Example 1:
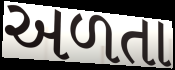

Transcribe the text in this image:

અળતા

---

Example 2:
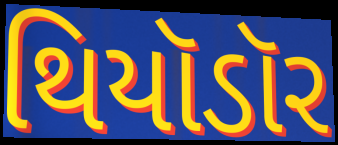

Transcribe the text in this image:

થિયૉડૉર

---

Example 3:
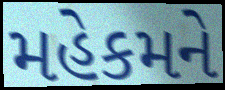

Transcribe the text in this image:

મહેકમને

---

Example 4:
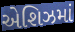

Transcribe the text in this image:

એશિઝમાં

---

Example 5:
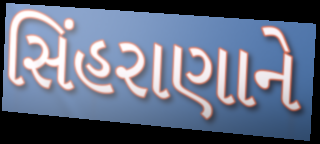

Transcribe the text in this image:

સિંહરાણાને